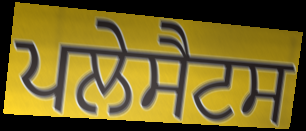
ਪਲੇਸੈਟਸ